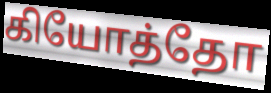
கியோத்தோ